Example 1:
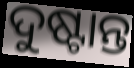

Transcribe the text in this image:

ଦୁଷ୍ଟାନ୍ତ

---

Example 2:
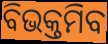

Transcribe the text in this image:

ବିଭକ୍ତମିବ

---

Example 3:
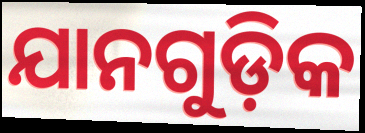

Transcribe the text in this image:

ଯାନଗୁଡ଼ିକ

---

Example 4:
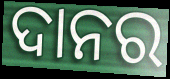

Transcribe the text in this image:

ଦାନର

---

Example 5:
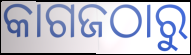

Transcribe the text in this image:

କାଗଜଠାରୁ